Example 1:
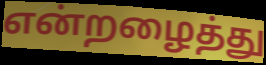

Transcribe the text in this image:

என்றழைத்து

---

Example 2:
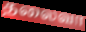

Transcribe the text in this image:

தலைவா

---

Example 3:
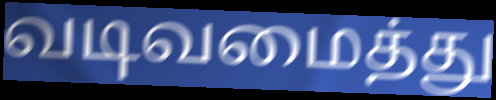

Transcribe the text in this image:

வடிவமைத்து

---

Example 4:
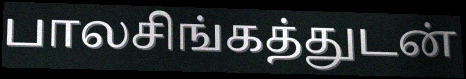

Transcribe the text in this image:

பாலசிங்கத்துடன்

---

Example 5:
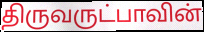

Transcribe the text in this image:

திருவருட்பாவின்